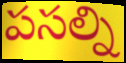
పసల్ని